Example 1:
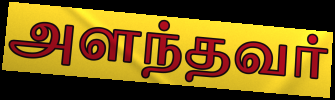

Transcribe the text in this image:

அளந்தவர்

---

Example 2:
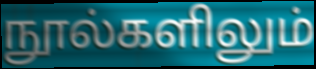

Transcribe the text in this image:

நூல்களிலும்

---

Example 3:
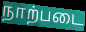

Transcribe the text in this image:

நாற்படை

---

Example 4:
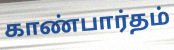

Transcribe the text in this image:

காண்பார்தம்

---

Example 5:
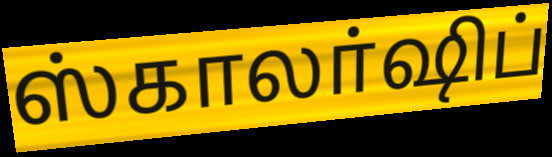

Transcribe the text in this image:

ஸ்காலர்ஷிப்